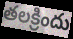
తలక్రిందు